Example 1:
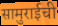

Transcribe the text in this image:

सामुराईची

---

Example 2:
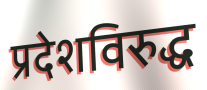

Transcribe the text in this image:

प्रदेशविरुद्ध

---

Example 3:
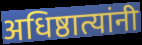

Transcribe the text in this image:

अधिष्ठात्यांनी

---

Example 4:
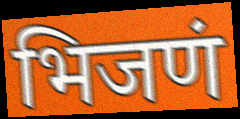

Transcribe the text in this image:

भिजणं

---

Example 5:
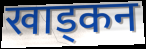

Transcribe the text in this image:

खाड्कन